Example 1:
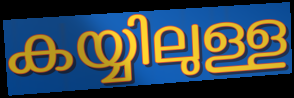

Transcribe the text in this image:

കയ്യിലുള്ള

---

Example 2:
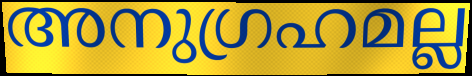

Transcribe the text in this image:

അനുഗ്രഹമല്ല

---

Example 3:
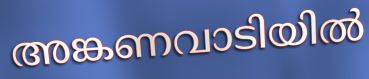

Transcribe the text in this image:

അങ്കണവാടിയിൽ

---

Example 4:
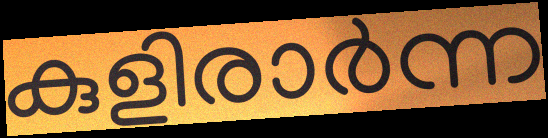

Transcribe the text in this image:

കുളിരാർന്ന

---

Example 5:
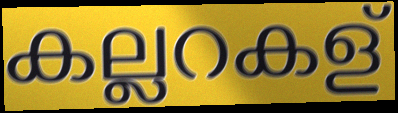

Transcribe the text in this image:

കല്ലറകള്